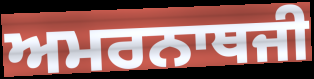
ਅਮਰਨਾਥਜੀ